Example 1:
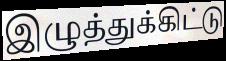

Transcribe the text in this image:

இழுத்துக்கிட்டு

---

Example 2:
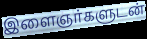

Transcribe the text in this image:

இளைஞர்களுடன்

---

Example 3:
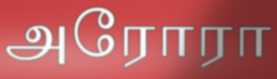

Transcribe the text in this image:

அரோரா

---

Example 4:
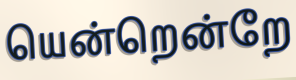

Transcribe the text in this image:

யென்றென்றே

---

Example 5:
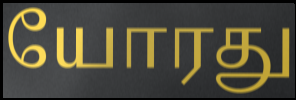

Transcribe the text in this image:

யோரது